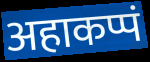
अहाकप्पं